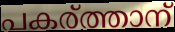
പകര്ത്താന്